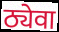
ठ्येवा